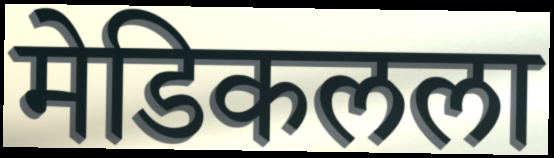
मेडिकलला